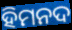
ହିମନଦ